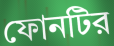
ফোনটির